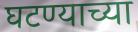
घटण्याच्या